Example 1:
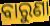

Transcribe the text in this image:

ବାରୁଣା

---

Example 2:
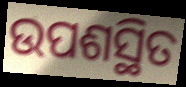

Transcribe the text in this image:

ଉପଶସ୍ଥିତ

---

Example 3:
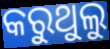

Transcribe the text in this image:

କରୁଥୁଲୁ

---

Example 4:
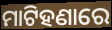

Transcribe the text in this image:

ମାଟିହଣାରେ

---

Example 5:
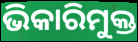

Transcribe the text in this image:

ଭିକାରିମୁକ୍ତ